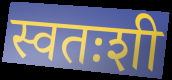
स्वतःशी